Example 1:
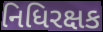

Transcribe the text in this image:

નિધિરક્ષક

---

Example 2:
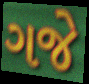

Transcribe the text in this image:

ગજે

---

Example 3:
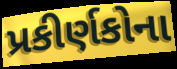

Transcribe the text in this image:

પ્રકીર્ણકોના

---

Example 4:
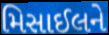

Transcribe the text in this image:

મિસાઈલને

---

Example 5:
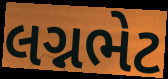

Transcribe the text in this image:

લગ્નભેટ